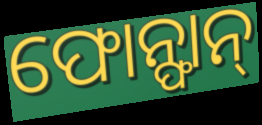
ଫୋନ୍ଫାନ୍